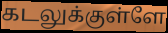
கடலுக்குள்ளே